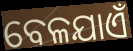
ବେଳଯାଏଁ